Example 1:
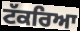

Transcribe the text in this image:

ਟੱਕਰਿਆ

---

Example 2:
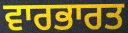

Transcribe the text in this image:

ਵਾਰਭਾਰਤ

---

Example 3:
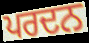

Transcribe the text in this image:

ਪਰਦਨ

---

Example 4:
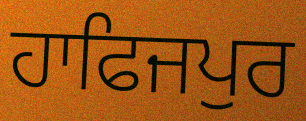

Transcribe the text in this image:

ਹਾਫਿਜਪੁਰ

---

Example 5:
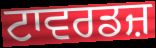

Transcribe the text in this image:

ਟਾਵਰਡਜ਼